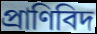
প্রাণিবিদ